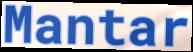
Mantar